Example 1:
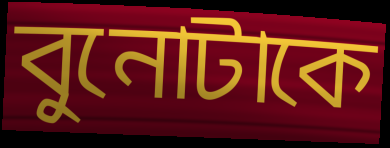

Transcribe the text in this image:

বুনোটাকে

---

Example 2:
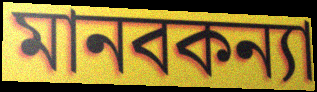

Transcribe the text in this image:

মানবকন্যা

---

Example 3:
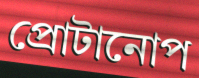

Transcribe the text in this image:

প্রোটানোপ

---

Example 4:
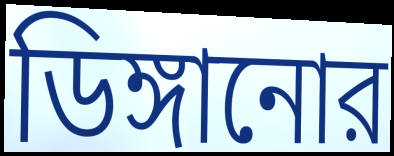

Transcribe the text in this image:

ডিঙ্গানোর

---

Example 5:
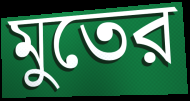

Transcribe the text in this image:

মুতের